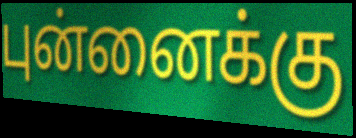
புன்னைக்கு